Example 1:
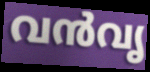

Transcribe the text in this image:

വൻവൃ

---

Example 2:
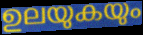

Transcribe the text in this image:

ഉലയുകയും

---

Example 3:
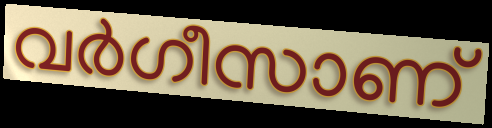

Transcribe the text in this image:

വർഗീസാണ്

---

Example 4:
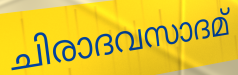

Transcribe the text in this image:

ചിരാദവസാദമ്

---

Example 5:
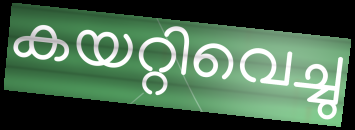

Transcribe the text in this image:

കയറ്റിവെച്ചു